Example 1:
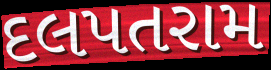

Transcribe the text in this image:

દલપતરામ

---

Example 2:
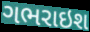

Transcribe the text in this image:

ગભરાઇશ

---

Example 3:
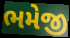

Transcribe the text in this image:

ભમેજી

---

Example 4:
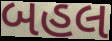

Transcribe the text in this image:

બહલ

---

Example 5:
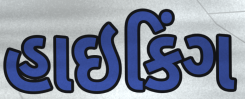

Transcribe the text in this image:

હાઇકિંગ